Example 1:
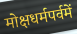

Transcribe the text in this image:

मोक्षधर्मपर्वमें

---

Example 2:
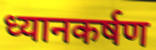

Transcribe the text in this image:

ध्यानकर्षण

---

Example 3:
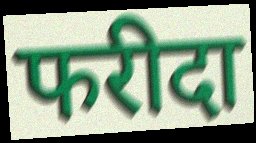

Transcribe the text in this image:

फरीदा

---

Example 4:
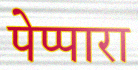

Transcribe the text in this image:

पेप्पारा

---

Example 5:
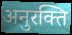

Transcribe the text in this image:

अनुरक्ति